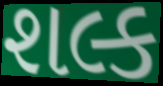
શલ્ક